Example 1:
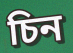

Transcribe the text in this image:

চিন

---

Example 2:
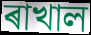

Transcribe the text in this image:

ৰাখাল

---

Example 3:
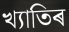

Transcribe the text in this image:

খ্যাতিৰ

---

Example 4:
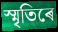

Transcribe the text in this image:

স্মৃতিৰে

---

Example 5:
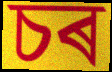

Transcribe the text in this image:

চৰ